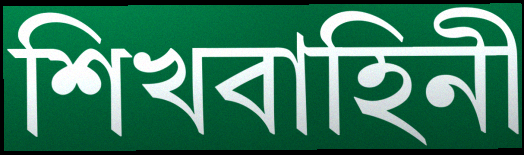
শিখবাহিনী